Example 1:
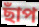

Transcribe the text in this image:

ছাঁপ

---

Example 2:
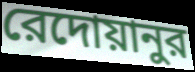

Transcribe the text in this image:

রেদোয়ানুর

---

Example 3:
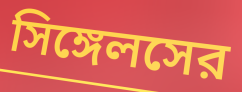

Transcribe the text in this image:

সিঙ্গেলসের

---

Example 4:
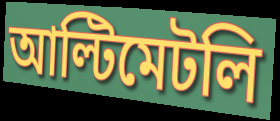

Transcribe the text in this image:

আল্টিমেটলি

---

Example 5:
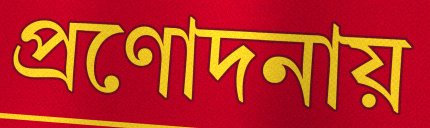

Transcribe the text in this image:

প্রণোদনায়